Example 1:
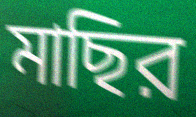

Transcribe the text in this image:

মাছির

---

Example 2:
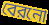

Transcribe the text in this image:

বেরনো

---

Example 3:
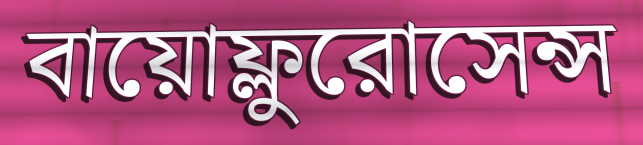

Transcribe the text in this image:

বায়োফ্লুরোসেন্স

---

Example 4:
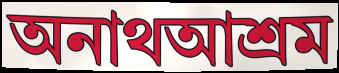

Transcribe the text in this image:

অনাথআশ্রম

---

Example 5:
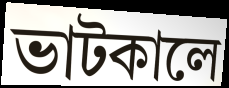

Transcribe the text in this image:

ভাটকালে